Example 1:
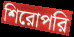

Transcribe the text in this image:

শিরোপরি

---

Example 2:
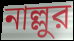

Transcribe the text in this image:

নাল্লুর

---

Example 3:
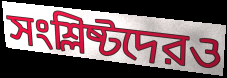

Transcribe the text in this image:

সংশ্লিষ্টদেরও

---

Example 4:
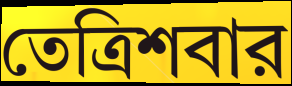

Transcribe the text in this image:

তেত্রিশবার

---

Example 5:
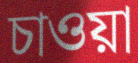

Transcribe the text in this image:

চাওয়া